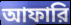
আফারি